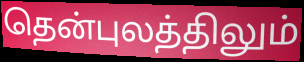
தென்புலத்திலும்